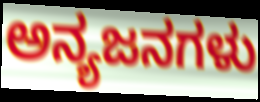
ಅನ್ಯಜನಗಳು